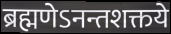
ब्रह्मणेऽनन्तशक्तये